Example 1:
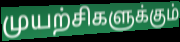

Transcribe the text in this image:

முயற்சிகளுக்கும்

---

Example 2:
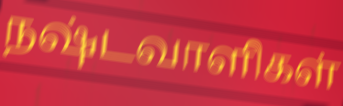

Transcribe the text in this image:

நஷ்டவாளிகள்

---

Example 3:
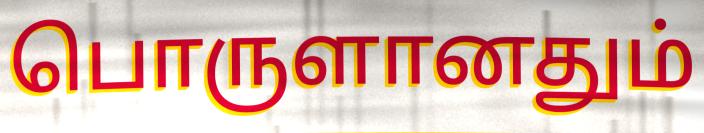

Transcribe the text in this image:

பொருளானதும்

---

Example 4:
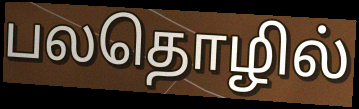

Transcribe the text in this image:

பலதொழில்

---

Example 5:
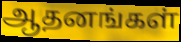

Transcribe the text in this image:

ஆதனங்கள்